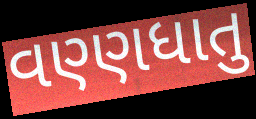
વણ્ણધાતુ